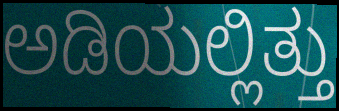
ಅಡಿಯಲ್ಲಿತ್ತು